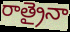
రాత్రైనా